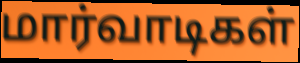
மார்வாடிகள்